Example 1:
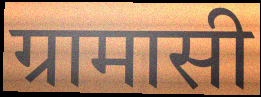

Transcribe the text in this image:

ग्रामासी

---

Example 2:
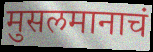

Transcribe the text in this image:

मुसलमानाचं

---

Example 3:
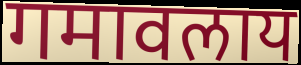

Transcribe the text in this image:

गमावलाय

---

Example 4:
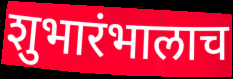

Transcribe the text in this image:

शुभारंभालाच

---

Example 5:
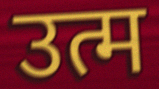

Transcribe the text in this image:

उत्म